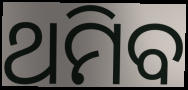
ଥମିବ